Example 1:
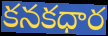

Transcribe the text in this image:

కనకధార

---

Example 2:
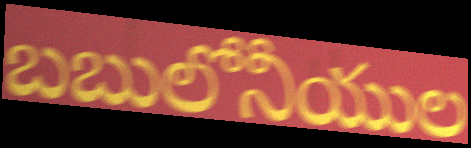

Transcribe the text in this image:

బబులోనీయుల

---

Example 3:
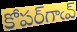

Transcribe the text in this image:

కోపర్‌గాఁవ్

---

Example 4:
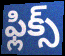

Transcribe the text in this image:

ఫ్లిక్స్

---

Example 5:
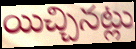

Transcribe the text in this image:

యిచ్చినట్లు